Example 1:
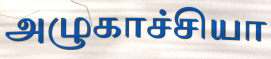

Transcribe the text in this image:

அழுகாச்சியா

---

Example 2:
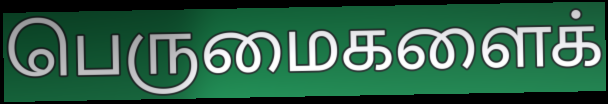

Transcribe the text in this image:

பெருமைகளைக்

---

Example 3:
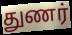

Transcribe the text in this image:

துணர்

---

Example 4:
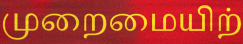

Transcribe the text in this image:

முறைமையிற்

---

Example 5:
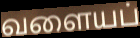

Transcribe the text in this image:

வளையப்